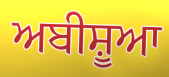
ਅਬੀਸ਼ੂਆ